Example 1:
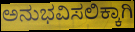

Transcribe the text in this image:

ಅನುಭವಿಸಲಿಕ್ಕಾಗಿ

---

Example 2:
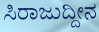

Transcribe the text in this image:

ಸಿರಾಜುದ್ದೀನ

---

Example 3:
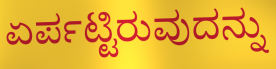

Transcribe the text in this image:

ಏರ್ಪಟ್ಟಿರುವುದನ್ನು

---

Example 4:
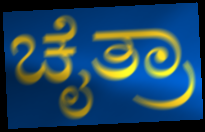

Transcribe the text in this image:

ಚೈತ್ರಾ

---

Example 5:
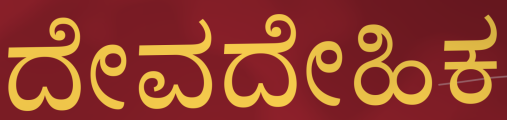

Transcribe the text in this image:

ದೇವದೇಹಿಕ